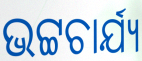
ଭଟ୍ଟଚାର୍ଯ୍ୟ